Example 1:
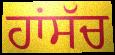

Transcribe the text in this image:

ਹਾਂਸੱਚ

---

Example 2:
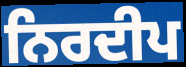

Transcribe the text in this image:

ਨਿਰਦੀਪ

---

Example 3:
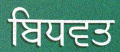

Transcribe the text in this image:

ਬਿਧਵਤ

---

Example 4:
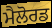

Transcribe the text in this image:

ਮੈਲੋਰਡ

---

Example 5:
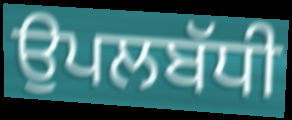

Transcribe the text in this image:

ਉਪਲਬੱਧੀ